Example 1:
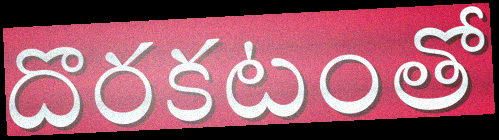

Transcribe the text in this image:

దొరకటంతో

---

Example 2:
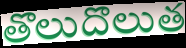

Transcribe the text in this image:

తొలుదొలుత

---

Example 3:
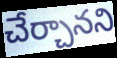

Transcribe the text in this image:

చేర్చానని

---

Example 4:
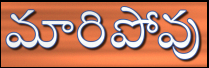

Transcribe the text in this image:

మారిపోవు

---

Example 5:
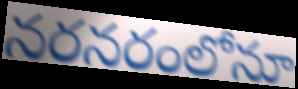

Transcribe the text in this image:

నరనరంలోనూ